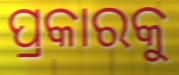
ପ୍ରକାରକୁ